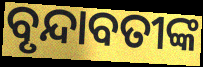
ବୃନ୍ଦାବତୀଙ୍କ